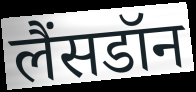
लैंसडॉन